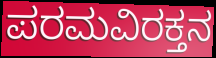
ಪರಮವಿರಕ್ತನ